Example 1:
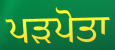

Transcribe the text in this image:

ਪੜਪੋਤਾ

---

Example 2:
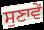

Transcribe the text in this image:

ਸੁਣਾਵੇਂ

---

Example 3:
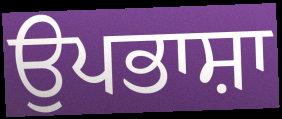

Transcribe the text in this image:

ਉਪਭਾਸ਼ਾ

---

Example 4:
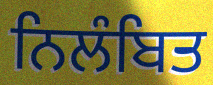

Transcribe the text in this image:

ਨਿਲੰਬਿਤ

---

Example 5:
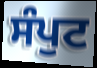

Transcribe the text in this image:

ਸੰਪੁਟ